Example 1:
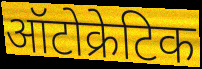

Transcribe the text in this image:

ऑटोक्रेटिक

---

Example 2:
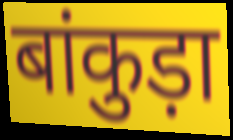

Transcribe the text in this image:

बांकुड़ा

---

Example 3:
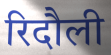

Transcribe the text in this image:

रिदौली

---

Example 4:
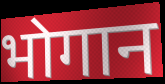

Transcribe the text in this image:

भोगान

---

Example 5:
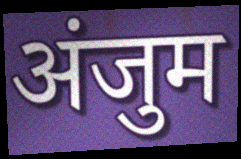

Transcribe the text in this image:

अंजुम